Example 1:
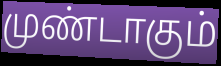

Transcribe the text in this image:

முண்டாகும்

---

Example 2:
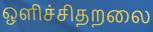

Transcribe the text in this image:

ஒளிச்சிதறலை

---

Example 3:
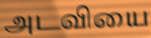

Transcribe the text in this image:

அடவியை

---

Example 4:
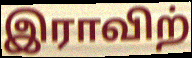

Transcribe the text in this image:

இராவிற்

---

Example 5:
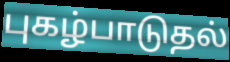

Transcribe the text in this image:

புகழ்பாடுதல்